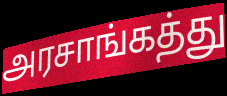
அரசாங்கத்து